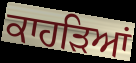
ਕਾਹੜਿਆਂ